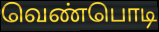
வெண்பொடி